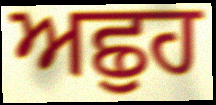
ਅਛੁਹ